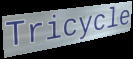
Tricycle